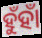
ହୁଁହାଁ